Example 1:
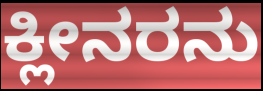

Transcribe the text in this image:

ಕ್ಲೀನರನು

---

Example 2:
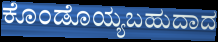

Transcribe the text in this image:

ಕೊಂಡೊಯ್ಯಬಹುದಾದ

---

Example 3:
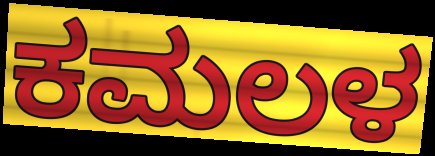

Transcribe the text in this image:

ಕಮಲಳ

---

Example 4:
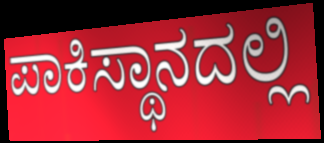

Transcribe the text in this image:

ಪಾಕಿಸ್ಥಾನದಲ್ಲಿ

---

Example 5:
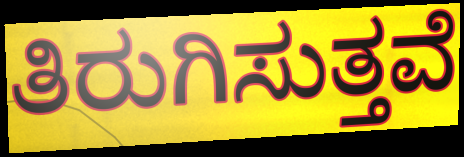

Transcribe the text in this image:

ತಿರುಗಿಸುತ್ತವೆ